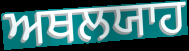
ਅਥਲਯਾਹ